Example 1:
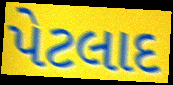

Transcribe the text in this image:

પેટલાદ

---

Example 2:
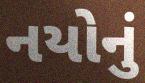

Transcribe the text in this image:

નયોનું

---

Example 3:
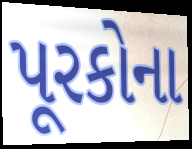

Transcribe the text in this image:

પૂરકોના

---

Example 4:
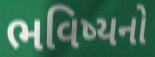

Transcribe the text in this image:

ભવિષ્યનો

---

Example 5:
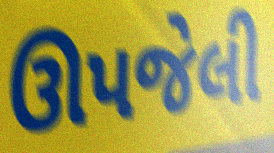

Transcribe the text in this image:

ઊપજેલી